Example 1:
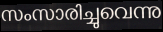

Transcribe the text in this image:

സംസാരിച്ചുവെന്നു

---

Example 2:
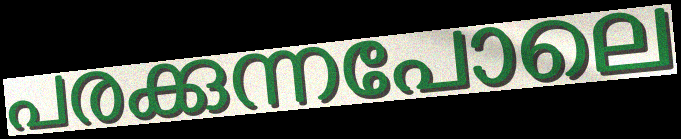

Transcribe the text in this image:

പരക്കുന്നപോലെ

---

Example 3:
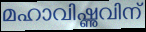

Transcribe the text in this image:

മഹാവിഷ്ണുവിന്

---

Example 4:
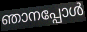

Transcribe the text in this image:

ഞാനപ്പോൾ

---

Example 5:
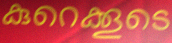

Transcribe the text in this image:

കുറെക്കൂടെ